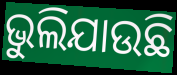
ଭୁଲିଯାଉଛି